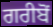
ਗਰੀਬੋਂ